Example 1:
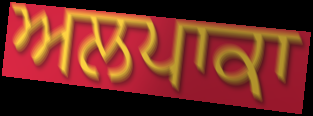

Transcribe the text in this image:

ਅਲਪਾਕਾ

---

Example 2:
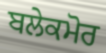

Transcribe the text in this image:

ਬਲੇਕਮੋਰ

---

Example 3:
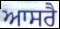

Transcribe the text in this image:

ਆਸਰੈ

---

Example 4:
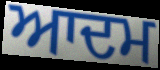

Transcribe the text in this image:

ਆਦਮ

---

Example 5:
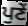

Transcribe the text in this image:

ਪੁਣੇਂ